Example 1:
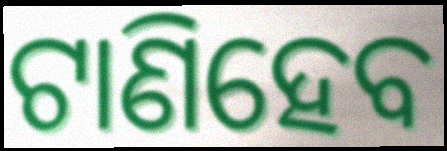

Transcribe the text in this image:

ଟାଣିହେବ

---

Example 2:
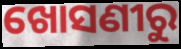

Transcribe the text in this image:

ଖୋସଣୀରୁ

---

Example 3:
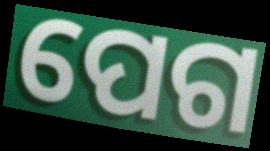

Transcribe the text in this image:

ପେଗ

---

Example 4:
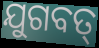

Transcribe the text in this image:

ଯୁଗବତ୍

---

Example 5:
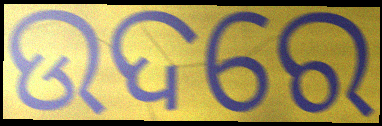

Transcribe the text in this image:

ଉଦରେ